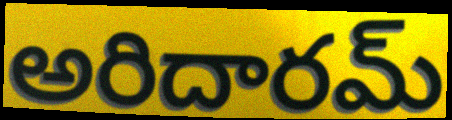
అరిదారమ్